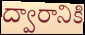
ద్వారానికి